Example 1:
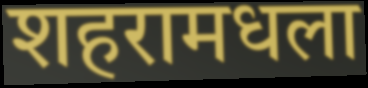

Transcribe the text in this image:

शहरामधला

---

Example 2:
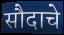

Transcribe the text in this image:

सौदाचे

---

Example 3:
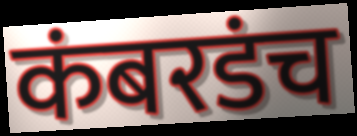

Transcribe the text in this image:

कंबरडंच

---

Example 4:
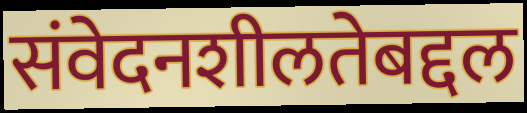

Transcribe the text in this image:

संवेदनशीलतेबद्दल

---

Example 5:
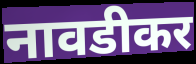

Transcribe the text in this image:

नावडीकर